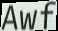
Awf